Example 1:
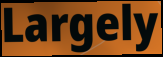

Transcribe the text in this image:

Largely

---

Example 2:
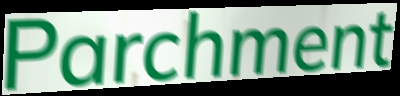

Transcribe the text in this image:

Parchment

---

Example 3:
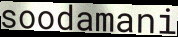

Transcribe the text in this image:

soodamani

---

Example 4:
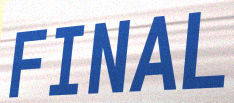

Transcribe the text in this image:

FINAL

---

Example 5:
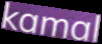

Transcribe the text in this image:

kamal